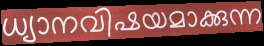
ധ്യാനവിഷയമാക്കുന്ന